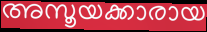
അസൂയക്കാരായ